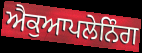
ਐਕੁਆਪਲੇਨਿੰਗ